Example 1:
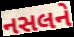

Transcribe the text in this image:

નસલને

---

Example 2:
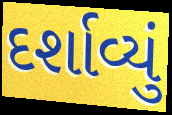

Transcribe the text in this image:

દર્શાવ્યું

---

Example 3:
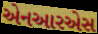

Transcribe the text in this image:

એનઆરએસ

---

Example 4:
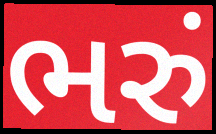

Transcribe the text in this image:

ભરું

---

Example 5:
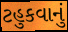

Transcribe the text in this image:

ટહુકવાનું